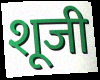
शूजी